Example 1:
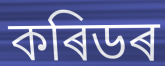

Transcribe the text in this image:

কৰিডৰ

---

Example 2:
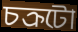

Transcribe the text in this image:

চক্ৰটো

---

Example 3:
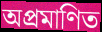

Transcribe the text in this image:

অপ্ৰমাণিত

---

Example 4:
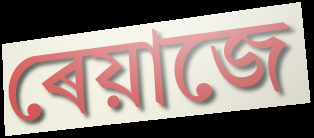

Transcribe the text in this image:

ৰেয়াজে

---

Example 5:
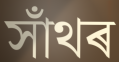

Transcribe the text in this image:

সাঁথৰ